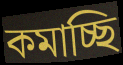
কমাচ্ছি